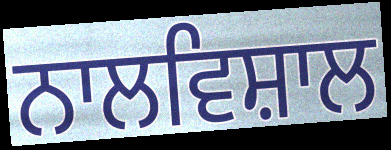
ਨਾਲਵਿਸ਼ਾਲ